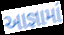
આજ્ઞામાં